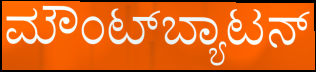
ಮೌಂಟ್‌ಬ್ಯಾಟನ್